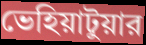
ভেহিয়াটুয়ার